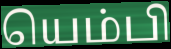
யெம்பி